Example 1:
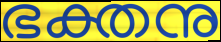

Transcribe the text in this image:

ഭക്തനു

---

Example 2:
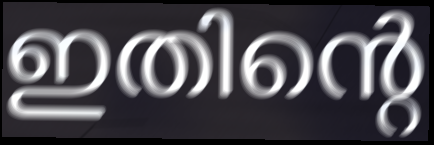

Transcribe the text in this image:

ഇതിന്റെ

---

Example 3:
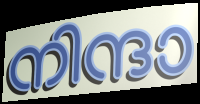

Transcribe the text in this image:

നിന്ദാ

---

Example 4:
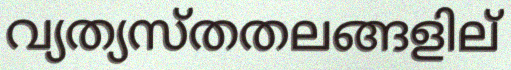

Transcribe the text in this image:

വ്യത്യസ്തതലങ്ങളില്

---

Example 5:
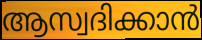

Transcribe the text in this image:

ആസ്വദിക്കാൻ